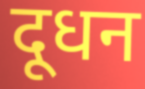
दूधन